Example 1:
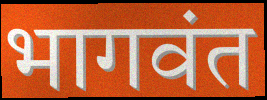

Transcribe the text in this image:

भागवंत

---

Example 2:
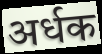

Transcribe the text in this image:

अर्धक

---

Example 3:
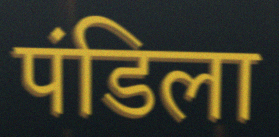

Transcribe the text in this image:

पंडिला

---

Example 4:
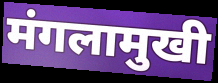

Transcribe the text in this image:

मंगलामुखी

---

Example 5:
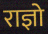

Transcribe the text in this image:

राज्ञो